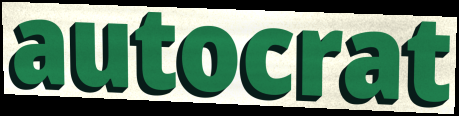
autocrat